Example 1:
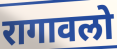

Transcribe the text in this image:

रागावलो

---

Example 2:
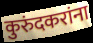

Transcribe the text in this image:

कुरुंदकरांना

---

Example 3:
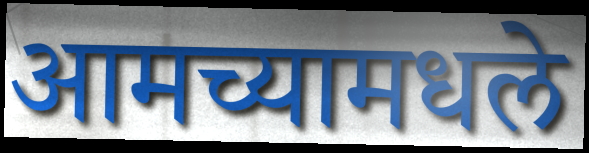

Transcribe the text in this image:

आमच्यामधले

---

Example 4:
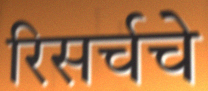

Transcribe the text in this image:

रिसर्चचे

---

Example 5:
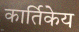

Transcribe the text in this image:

कार्तिकेय